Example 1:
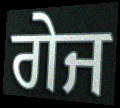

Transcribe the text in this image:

ਗੇਜ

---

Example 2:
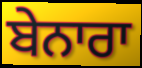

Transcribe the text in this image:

ਬੇਨਾਰਾ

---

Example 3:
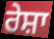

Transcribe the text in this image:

ਰੇਸ਼ਾ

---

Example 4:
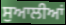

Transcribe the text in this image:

ਸੁਆਲੀਆਂ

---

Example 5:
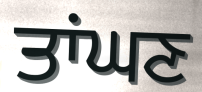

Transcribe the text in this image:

ਤਾਂਘਣ